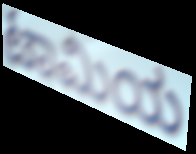
ಟಾಮಿಯ